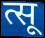
त्सू